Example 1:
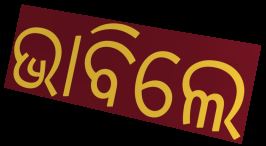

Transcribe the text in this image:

ଭାବିଲେ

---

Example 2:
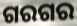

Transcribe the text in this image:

ଗରଗର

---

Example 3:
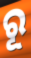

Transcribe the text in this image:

ରୂ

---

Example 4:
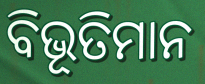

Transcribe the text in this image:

ବିଭୂତିମାନ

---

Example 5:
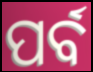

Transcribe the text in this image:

ପର୍ବ